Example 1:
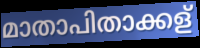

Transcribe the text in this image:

മാതാപിതാക്കള്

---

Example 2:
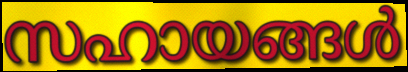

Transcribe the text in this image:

സഹായങ്ങൾ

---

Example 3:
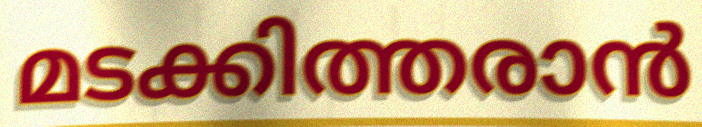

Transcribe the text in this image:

മടക്കിത്തരാൻ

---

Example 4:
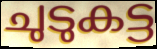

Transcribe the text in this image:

ചുടുകട്ട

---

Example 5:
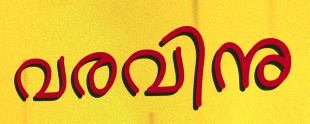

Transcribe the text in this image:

വരവിനു